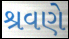
શ્રવણે